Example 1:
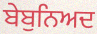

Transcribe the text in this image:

ਬੇਬੁਨਿਅਦ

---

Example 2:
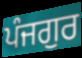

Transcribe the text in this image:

ਪੰਜਗੁਰ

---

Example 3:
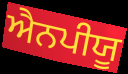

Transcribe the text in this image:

ਐਨਪੀਯੂ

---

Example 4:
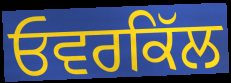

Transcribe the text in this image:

ਓਵਰਕਿੱਲ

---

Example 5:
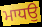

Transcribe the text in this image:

ਮਾਧਉ